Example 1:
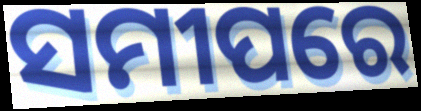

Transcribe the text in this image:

ସମୀପରେ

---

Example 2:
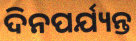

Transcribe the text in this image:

ଦିନପର୍ଯ୍ୟନ୍ତ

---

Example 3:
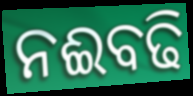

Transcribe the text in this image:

ନଈବଢି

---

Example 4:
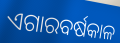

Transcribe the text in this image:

ଏଗାରବର୍ଷକାଳ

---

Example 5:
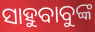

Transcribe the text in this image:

ସାହୁବାବୁଙ୍କ